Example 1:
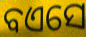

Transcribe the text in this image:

ବଏସେ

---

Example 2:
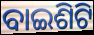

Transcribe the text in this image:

ବାଇଶିଟି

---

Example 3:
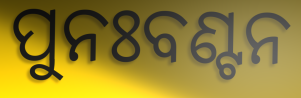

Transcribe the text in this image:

ପୁନଃବଣ୍ଟନ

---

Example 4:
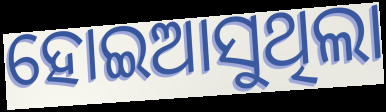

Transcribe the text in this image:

ହୋଇଆସୁଥିଲା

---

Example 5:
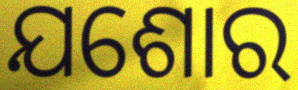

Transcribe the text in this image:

ଯଶୋର